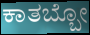
ಕಾತಬ್ಬೋ